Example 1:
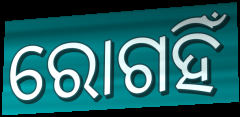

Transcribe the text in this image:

ରୋଗହିଁ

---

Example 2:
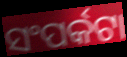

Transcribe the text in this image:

ସଂପର୍କଟା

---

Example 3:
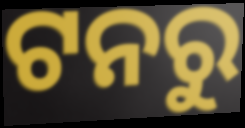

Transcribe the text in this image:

ଟନରୁ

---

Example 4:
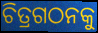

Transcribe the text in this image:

ଚିତ୍ରଗଠନକୁ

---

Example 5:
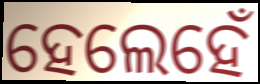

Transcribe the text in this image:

ହେଲେହେଁ